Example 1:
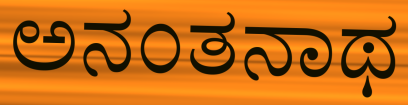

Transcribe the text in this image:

ಅನಂತನಾಥ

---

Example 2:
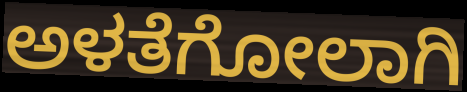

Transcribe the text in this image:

ಅಳತೆಗೋಲಾಗಿ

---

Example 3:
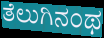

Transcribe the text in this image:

ತೆಲುಗಿನಂಥ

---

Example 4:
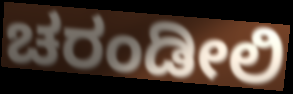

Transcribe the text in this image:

ಚರಂಡೀಲಿ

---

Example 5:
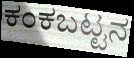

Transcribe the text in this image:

ಕಂಕಬಟ್ಟನ